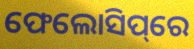
ଫେଲୋସିପ୍‌ରେ